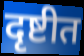
दृष्टीत